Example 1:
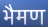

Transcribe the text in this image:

भैमण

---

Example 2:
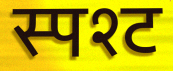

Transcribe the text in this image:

स्पश्ट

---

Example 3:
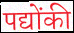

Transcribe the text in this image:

पद्योंकी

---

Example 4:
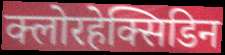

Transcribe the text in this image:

क्लोरहेक्सिडिन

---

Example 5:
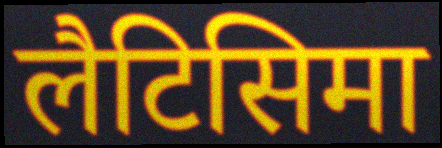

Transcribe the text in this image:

लैटिसिमा